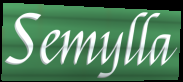
Semylla